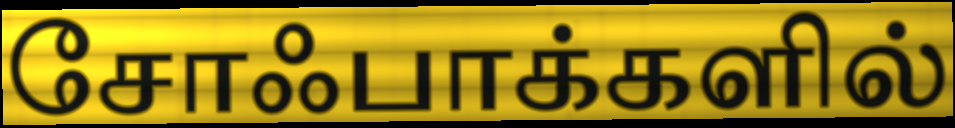
சோஃபாக்களில்